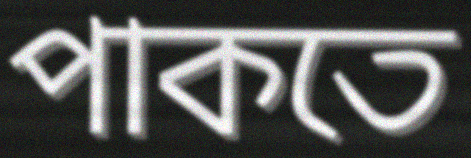
পাকতে